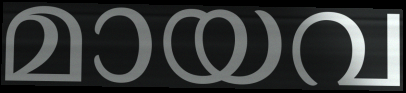
മായവ